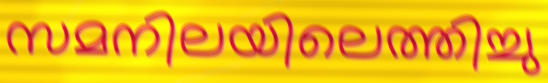
സമനിലയിലെത്തിച്ചു